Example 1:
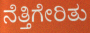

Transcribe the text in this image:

ನೆತ್ತಿಗೇರಿತು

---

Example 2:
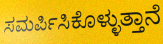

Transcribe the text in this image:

ಸಮರ್ಪಿಸಿಕೊಳ್ಳುತ್ತಾನೆ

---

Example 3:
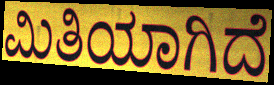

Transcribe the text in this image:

ಮಿತಿಯಾಗಿದೆ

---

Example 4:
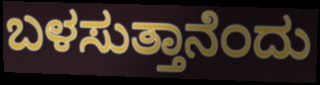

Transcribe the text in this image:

ಬಳಸುತ್ತಾನೆಂದು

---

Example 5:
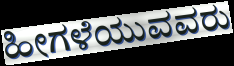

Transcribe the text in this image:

ಹೀಗಳೆಯುವವರು